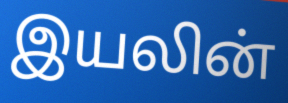
இயலின்